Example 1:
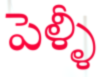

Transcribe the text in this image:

పెళ్ళీ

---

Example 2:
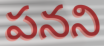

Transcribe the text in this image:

పనని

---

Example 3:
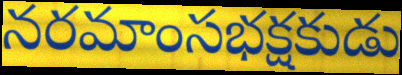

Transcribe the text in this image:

నరమాంసభక్షకుడు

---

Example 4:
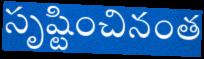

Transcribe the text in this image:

సృష్టించినంత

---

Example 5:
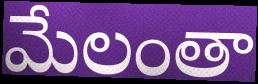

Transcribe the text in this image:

మేలంతా